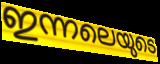
ഇന്നലെയുടെ